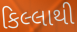
કિલ્લાથી